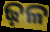
ଢ଼ଳ